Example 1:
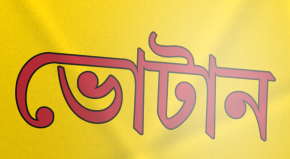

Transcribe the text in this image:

ভোটান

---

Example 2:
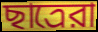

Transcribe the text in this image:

ছাত্রেরা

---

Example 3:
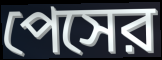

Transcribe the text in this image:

পেসের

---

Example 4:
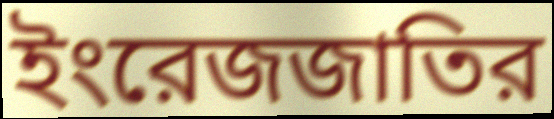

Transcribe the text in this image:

ইংরেজজাতির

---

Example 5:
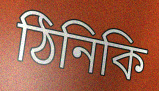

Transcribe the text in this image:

ঠিনিকি